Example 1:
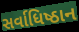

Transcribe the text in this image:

સર્વાધિષ્ઠાન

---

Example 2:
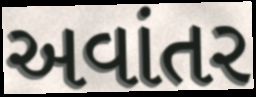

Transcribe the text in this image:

અવાંતર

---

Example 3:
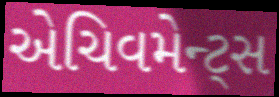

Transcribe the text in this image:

એચિવમેન્ટ્સ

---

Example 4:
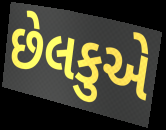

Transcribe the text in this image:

છેલકુએ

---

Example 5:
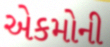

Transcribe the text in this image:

એકમોની